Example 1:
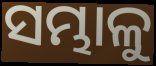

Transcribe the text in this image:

ସମ୍ଭାଳୁ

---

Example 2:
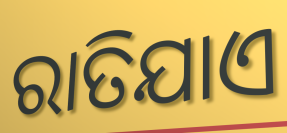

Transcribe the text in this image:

ରାତିଯାଏ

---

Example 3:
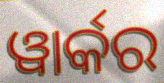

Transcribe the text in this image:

ୱାର୍କର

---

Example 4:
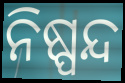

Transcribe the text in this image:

ନିଷ୍ପନ୍ଦ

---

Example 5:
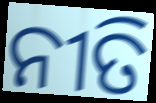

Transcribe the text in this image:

ନୀତି